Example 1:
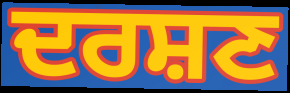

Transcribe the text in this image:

ਦਰਸ਼ਣ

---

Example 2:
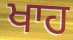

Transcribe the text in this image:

ਖਾਹ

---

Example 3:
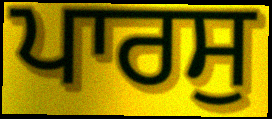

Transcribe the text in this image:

ਪਾਰਸੁ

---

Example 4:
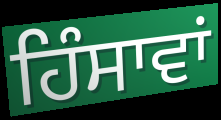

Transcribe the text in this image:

ਹਿੰਸਾਵਾਂ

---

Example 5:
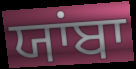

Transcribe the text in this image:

ਯਾਂਬਾ